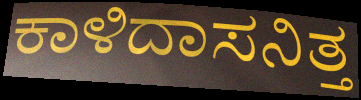
ಕಾಳಿದಾಸನಿತ್ತ